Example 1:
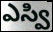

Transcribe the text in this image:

ఎస్వి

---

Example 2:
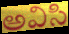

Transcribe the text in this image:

అవిసి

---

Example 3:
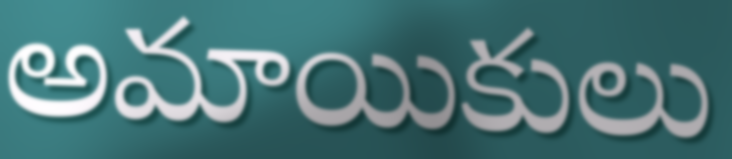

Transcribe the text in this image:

అమాయికులు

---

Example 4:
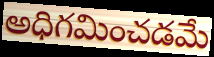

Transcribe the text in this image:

అధిగమించడమే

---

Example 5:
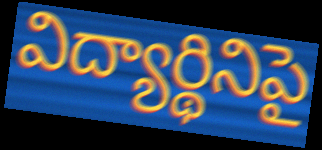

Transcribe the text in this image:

విద్యార్థినిపై